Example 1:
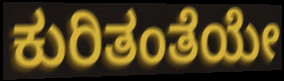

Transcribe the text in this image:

ಕುರಿತಂತೆಯೇ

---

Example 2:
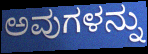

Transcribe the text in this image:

ಅವುಗಳನ್ನು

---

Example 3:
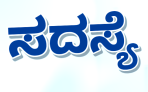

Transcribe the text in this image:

ಸದಸ್ಯೆ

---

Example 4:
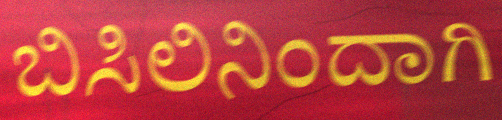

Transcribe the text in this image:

ಬಿಸಿಲಿನಿಂದಾಗಿ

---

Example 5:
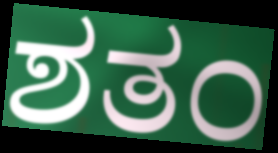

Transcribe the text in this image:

ಶತಂ